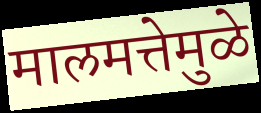
मालमत्तेमुळे